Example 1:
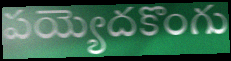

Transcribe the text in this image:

పయ్యెదకొంగు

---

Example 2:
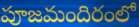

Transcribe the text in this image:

పూజమందిరంలో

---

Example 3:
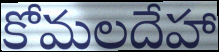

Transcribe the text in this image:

కోమలదేహా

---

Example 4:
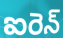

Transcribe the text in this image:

ఐరెన్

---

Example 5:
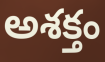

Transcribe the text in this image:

అశక్తం